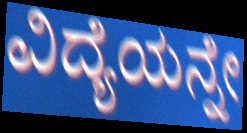
ವಿದ್ಯೆಯನ್ನೇ